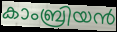
കാംബ്രിയൻ